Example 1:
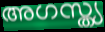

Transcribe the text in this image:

അഗസ്ത്യ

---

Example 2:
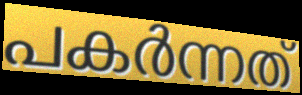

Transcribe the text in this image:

പകർന്നത്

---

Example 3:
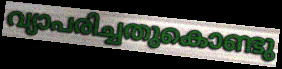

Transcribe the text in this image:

വ്യാപരിച്ചതുകൊണ്ടു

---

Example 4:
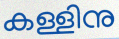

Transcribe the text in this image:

കള്ളിനു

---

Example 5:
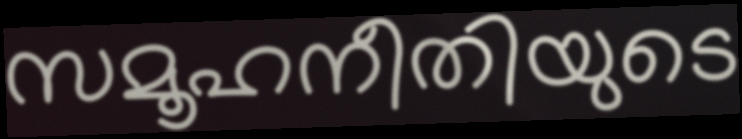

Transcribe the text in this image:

സമൂഹനീതിയുടെ